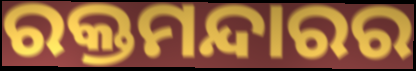
ରକ୍ତମନ୍ଦାରର